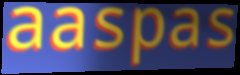
aaspas